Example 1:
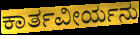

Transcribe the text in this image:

ಕಾರ್ತವೀರ್ಯನು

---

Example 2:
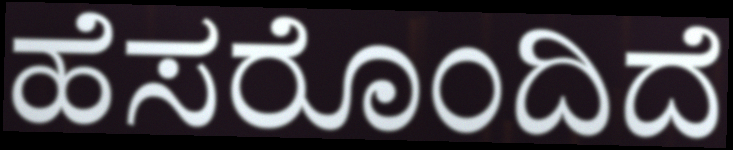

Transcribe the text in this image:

ಹೆಸರೊಂದಿದೆ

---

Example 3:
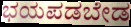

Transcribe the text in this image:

ಭಯಪಡಬೇಡ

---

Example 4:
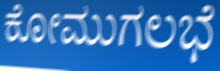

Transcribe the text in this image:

ಕೋಮುಗಲಭೆ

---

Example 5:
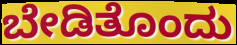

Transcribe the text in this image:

ಬೇಡಿತೊಂದು